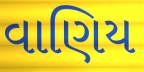
વાણિય